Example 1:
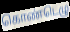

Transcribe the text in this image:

கொண்டெழு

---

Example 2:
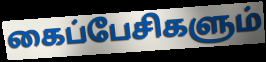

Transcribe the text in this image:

கைப்பேசிகளும்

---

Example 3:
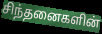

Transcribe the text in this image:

சிந்தனைகளின்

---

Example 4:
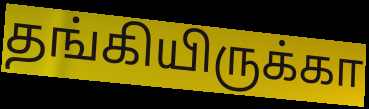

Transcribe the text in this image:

தங்கியிருக்கா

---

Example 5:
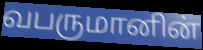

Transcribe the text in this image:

வபருமானின்